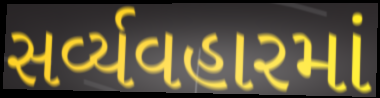
સર્વ્યવહારમાં